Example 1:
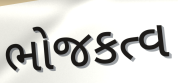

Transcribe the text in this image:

ભોજકત્વ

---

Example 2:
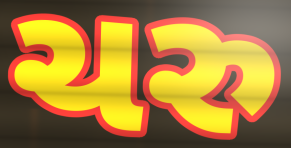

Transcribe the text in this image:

ચરુ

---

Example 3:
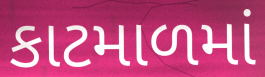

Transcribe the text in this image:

કાટમાળમાં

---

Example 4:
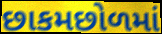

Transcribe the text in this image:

છાકમછોળમાં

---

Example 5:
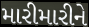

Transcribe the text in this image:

મારીમારીને